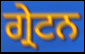
ਗ੍ਰੇਟਨ